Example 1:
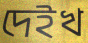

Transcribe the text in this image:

দেইখ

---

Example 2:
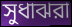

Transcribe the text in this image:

সুধাঝরা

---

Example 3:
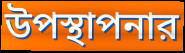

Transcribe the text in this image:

উপস্থাপনার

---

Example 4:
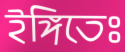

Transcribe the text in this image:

ইঙ্গিতেঃ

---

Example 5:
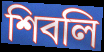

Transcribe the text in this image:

শিবলি